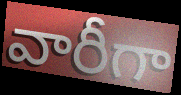
వారీగా